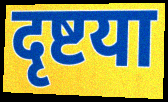
दृष्टया